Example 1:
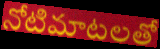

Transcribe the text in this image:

నోటిమాటలతో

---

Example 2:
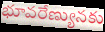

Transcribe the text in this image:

భూవరేణ్యునకు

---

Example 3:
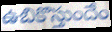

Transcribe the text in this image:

ఉబికొస్తుందేం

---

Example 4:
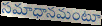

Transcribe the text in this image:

సమాధానమంటూ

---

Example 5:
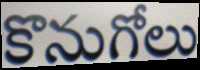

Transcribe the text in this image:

కొనుగోలు